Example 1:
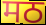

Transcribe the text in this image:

मठ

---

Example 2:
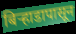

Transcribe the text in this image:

बिऱ्हाडापासून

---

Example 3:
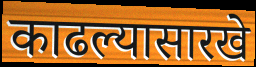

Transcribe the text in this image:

काढल्यासारखे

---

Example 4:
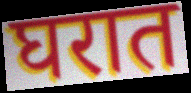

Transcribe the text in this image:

घरात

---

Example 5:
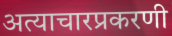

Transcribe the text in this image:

अत्याचारप्रकरणी